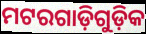
ମଟରଗାଡ଼ିଗୁଡ଼ିକ